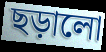
ছড়ালো